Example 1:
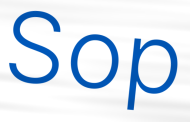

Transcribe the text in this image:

Sop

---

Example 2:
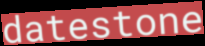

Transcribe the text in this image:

datestone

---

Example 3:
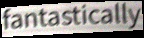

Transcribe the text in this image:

fantastically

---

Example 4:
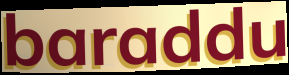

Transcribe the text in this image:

baraddu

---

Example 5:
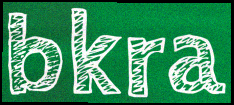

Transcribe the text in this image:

bkra